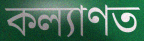
কল্যাণত